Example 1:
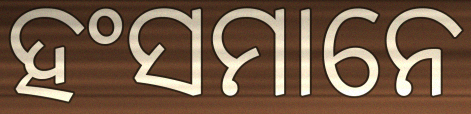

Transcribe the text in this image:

ହଂସମାନେ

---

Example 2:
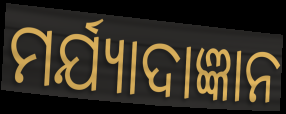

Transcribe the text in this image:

ମର୍ଯ୍ୟାଦାଜ୍ଞାନ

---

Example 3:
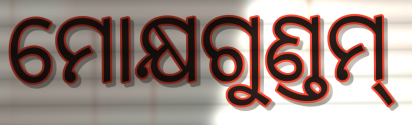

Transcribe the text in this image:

ମୋକ୍ଷଗୁଣ୍ଡମ୍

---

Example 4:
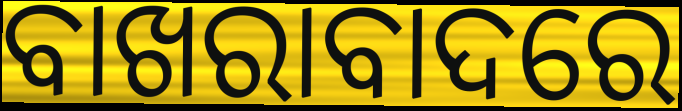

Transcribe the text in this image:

ବାଖରାବାଦରେ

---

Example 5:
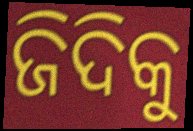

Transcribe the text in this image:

ଜିଦିକୁ